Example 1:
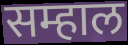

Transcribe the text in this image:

सम्हाल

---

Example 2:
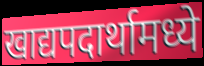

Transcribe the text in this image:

खाद्यपदार्थामध्ये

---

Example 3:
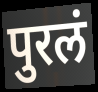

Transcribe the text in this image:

पुरलं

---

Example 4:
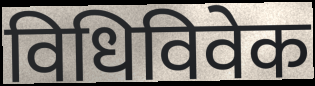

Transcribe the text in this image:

विधिविवेक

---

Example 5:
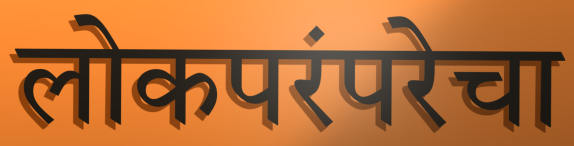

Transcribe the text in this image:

लोकपरंपरेचा